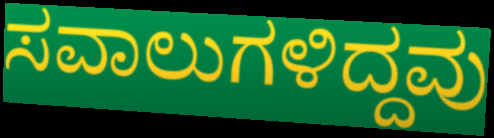
ಸವಾಲುಗಳಿದ್ದವು